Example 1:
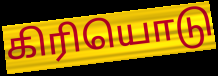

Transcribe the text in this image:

கிரியொடு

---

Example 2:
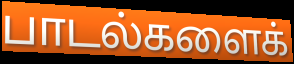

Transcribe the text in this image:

பாடல்களைக்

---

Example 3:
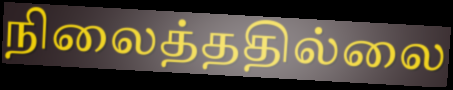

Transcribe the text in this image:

நிலைத்ததில்லை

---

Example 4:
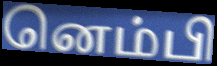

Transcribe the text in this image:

னெம்பி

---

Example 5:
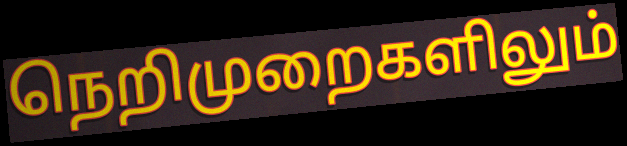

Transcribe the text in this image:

நெறிமுறைகளிலும்